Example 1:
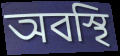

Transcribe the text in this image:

অবস্থি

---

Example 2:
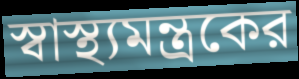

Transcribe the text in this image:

স্বাস্থ্যমন্ত্রকের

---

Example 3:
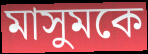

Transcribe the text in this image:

মাসুমকে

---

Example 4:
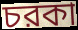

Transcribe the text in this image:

চরকা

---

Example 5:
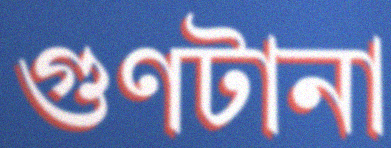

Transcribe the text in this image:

গুণটানা